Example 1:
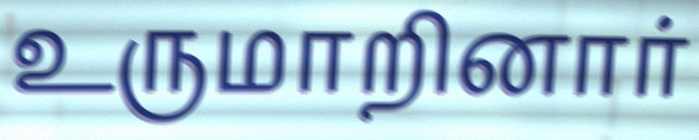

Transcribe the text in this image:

உருமாறினார்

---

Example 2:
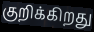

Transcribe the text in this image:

குறிக்கிறது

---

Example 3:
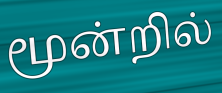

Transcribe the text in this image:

மூன்றில்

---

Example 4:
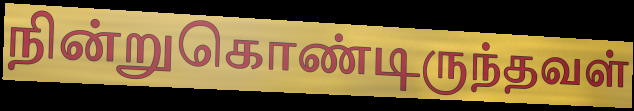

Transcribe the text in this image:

நின்றுகொண்டிருந்தவள்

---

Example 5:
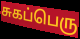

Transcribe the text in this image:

சுகப்பெரு